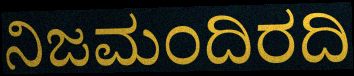
ನಿಜಮಂದಿರದಿ